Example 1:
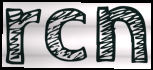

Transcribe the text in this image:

rcn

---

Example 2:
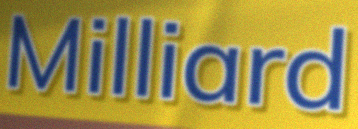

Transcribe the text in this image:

Milliard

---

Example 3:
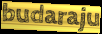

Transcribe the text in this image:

budaraju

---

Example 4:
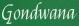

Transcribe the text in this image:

Gondwana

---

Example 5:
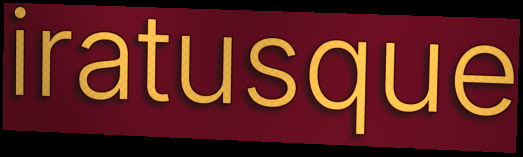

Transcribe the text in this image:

iratusque